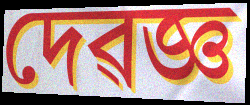
দেৱজ্ঞ